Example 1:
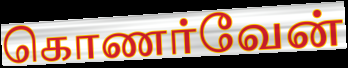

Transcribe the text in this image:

கொணர்வேன்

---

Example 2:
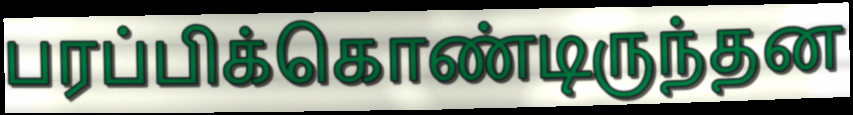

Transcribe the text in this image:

பரப்பிக்கொண்டிருந்தன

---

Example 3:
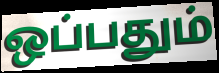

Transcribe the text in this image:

ஒப்பதும்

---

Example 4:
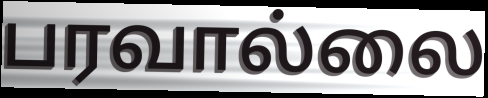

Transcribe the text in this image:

பரவால்லை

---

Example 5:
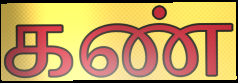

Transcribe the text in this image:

கண்